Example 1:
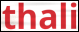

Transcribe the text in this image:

thali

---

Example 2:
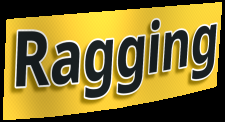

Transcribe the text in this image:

Ragging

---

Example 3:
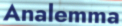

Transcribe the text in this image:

Analemma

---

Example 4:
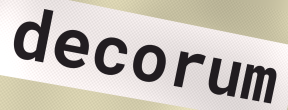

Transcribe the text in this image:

decorum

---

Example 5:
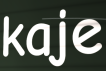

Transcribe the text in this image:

kaje